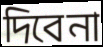
দিবেনা